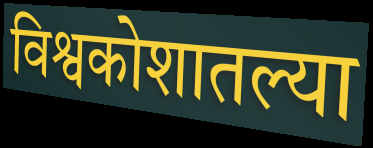
विश्वकोशातल्या